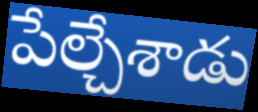
పేల్చేశాడు